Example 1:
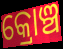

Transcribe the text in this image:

କ୍ରୋଞ୍ଚ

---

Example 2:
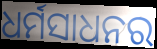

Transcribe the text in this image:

ଧର୍ମସାଧନର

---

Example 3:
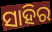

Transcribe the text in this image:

ସାହିର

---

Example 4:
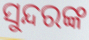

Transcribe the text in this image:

ସୁନ୍ଦରଙ୍କ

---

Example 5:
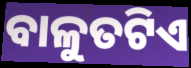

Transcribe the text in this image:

ବାଳୁତଟିଏ